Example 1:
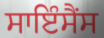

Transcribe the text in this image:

ਸਾਇੰਸੈਂਸ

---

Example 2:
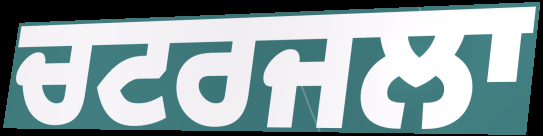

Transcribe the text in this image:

ਚਟਰਜਲਾ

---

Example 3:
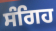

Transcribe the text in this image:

ਸੰਗਿਹ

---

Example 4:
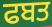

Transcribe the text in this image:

ਫਬਤ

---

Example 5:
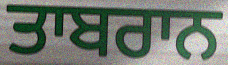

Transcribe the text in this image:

ਤਾਬਰਾਨ